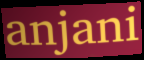
anjani